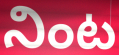
నింట